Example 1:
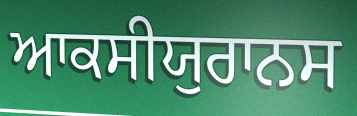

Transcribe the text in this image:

ਆਕਸੀਯੁਰਾਨਸ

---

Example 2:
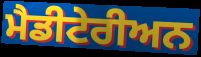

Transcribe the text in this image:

ਮੈਡੀਟੇਰੀਅਨ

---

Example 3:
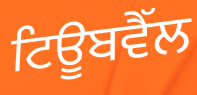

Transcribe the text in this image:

ਟਿਊਬਵੈੱਲ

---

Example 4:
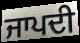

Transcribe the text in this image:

ਜਾਪਦੀ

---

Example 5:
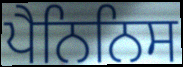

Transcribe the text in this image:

ਪੈਨਿਨਿਸ